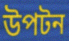
উপটন